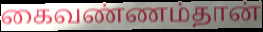
கைவண்ணம்தான்